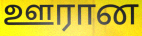
ஊரான